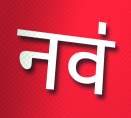
नव॑